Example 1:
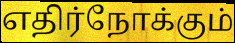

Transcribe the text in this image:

எதிர்நோக்கும்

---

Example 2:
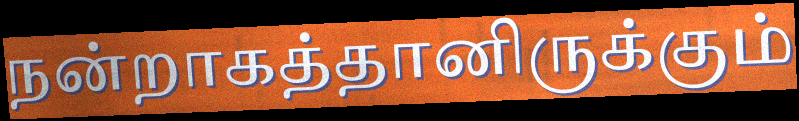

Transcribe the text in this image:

நன்றாகத்தானிருக்கும்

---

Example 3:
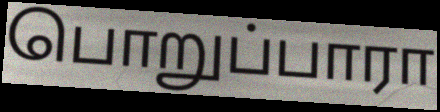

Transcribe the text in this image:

பொறுப்பாரா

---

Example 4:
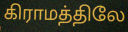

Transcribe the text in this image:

கிராமத்திலே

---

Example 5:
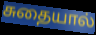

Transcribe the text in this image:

சுதையால்